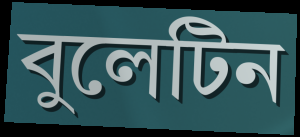
বুলেটিন